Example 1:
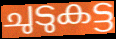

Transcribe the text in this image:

ചുടുകട്ട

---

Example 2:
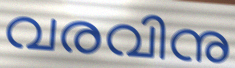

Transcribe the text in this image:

വരവിനു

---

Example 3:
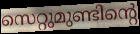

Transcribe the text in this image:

സെറ്റുമുണ്ടിന്റെ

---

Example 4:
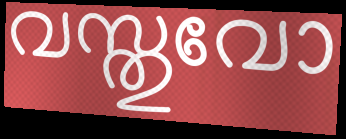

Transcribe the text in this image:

വസ്തുവോ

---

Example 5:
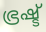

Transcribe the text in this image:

ഭ്രഷ്ട്